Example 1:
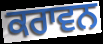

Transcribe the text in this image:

ਕਰਾਵਨ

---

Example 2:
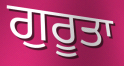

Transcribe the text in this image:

ਗੁਰੂਤਾ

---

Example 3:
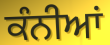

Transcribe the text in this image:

ਕੰਨੀਆਂ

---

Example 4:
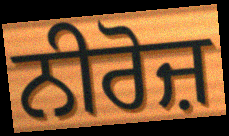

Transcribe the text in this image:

ਨੀਰੋਜ਼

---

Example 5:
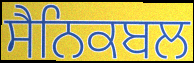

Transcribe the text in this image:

ਸੈਨਿਕਬਲ